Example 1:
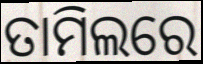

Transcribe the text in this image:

ତାମିଲରେ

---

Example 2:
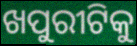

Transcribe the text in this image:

ଖପୁରୀଟିକୁ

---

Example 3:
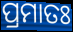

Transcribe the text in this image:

ପ୍ରମାତଃ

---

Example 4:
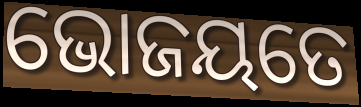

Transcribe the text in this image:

ଭୋଜୟତେ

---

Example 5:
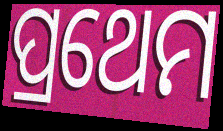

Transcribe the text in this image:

ପ୍ରଥେମ